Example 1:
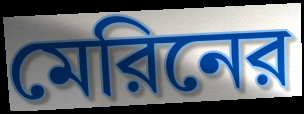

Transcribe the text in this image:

মেরিনের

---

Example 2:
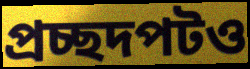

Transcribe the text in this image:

প্রচ্ছদপটও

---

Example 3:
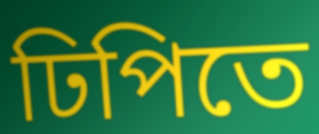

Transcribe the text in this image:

ঢিপিতে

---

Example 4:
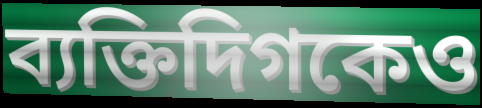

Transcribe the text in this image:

ব্যক্তিদিগকেও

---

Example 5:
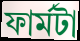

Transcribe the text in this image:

ফার্মটা